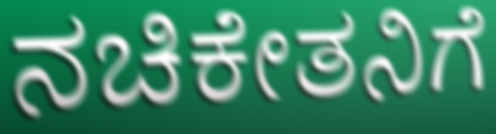
ನಚಿಕೇತನಿಗೆ